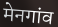
मेनगांव